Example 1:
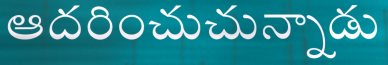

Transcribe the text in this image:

ఆదరించుచున్నాడు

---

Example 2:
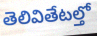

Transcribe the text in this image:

తెలివితేటల్తో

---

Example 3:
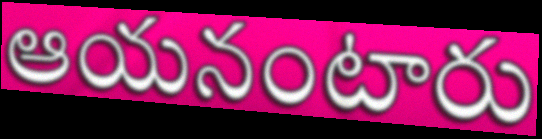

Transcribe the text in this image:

ఆయనంటారు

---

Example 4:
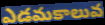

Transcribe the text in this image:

ఎడమకాలువ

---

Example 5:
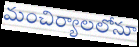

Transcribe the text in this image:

మంచిర్యాలలోనూ